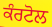
ਕੰਰਟੋਲ